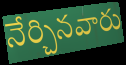
నేర్చినవారు